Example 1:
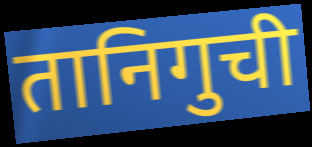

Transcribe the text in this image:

तानिगुची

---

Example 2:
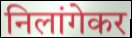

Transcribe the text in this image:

निलांगेकर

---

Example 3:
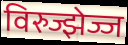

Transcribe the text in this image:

विरुज्झेज्ज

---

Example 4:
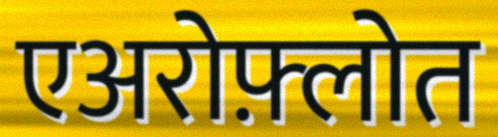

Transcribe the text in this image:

एअरोफ़्लोत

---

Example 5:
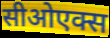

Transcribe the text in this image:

सीओएक्स